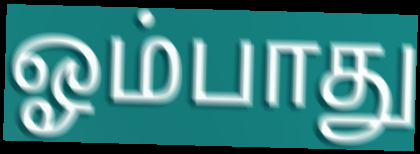
ஓம்பாது